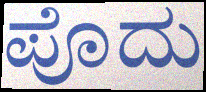
ಪೊದು